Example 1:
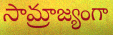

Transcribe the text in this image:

సామ్రాజ్యంగా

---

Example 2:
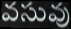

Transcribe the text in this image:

వసువు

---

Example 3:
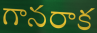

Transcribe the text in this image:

గానరాక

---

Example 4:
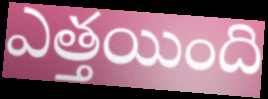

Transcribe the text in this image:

ఎత్తయింది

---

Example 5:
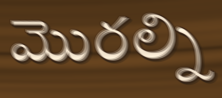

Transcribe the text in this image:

మొరల్ని